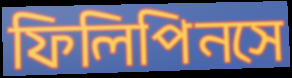
ফিলিপিনসে